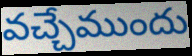
వచ్చేముందు